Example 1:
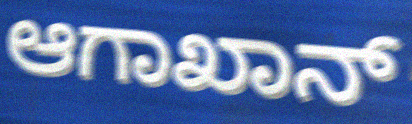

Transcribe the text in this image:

ಆಗಾಖಾನ್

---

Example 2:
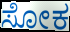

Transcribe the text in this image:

ಸೋಕ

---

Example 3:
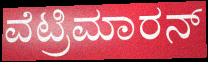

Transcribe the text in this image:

ವೆಟ್ರಿಮಾರನ್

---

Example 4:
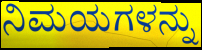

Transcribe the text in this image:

ನಿಮಯಗಳನ್ನು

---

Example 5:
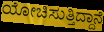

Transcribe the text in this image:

ಯೋಚಿಸುತ್ತಿದ್ದಾನೆ